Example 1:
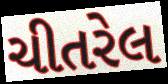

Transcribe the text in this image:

ચીતરેલ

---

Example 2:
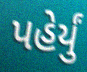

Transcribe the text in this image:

પહેર્યું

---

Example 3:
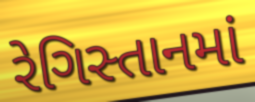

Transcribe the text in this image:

રેગિસ્તાનમાં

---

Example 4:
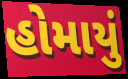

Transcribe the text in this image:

હોમાયું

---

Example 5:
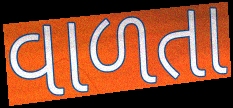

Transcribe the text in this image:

વાળતા